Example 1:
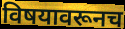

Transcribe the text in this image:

विषयावरूनच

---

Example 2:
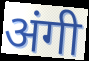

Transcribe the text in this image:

अंगी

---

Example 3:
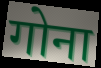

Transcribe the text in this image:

गोना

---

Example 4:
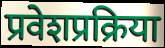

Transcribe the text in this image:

प्रवेशप्रक्रिया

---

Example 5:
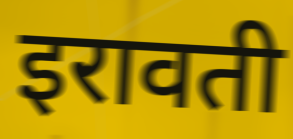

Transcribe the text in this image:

इरावती